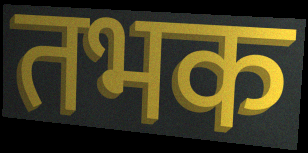
तभक